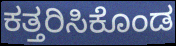
ಕತ್ತರಿಸಿಕೊಂಡ